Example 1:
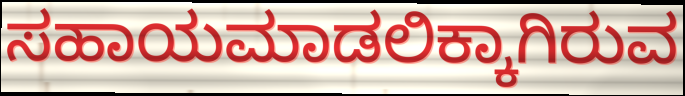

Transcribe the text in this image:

ಸಹಾಯಮಾಡಲಿಕ್ಕಾಗಿರುವ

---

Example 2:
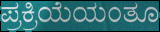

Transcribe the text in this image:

ಪ್ರಕ್ರಿಯೆಯಂತೂ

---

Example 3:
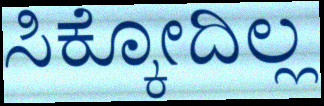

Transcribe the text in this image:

ಸಿಕ್ಕೋದಿಲ್ಲ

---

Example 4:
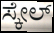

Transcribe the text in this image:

ಸ್ಕೇಲ್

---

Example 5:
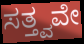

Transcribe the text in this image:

ಸತ್ತ್ವವೇ